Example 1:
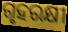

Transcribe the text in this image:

ଗୃହରକ୍ଷୀ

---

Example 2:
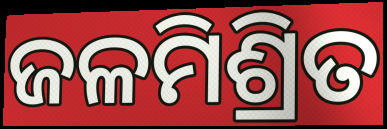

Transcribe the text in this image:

ଜଳମିଶ୍ରିତ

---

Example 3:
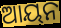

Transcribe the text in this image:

ଆୟନ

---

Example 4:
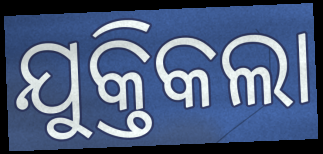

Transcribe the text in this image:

ଯୁକ୍ତିକଲା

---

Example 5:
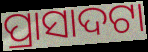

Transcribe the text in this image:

ପ୍ରାସାଦଟା